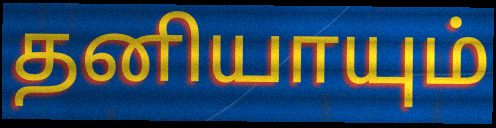
தனியாயும்